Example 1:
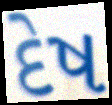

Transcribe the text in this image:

દેષ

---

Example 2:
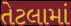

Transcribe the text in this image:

તેટલામાં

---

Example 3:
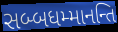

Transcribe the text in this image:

સબ્બધમ્માનન્તિ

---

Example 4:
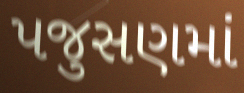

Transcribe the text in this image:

પજુસણમાં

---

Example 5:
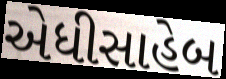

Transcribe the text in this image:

એધીસાહેબ